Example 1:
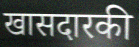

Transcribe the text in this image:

खासदारकी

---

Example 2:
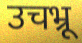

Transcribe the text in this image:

उचभ्रू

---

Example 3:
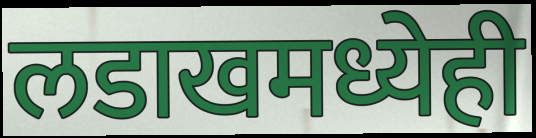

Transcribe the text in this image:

लडाखमध्येही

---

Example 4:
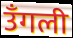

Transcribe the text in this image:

उँगली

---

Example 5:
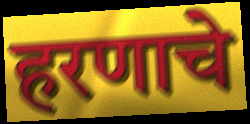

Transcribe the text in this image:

हरणाचे